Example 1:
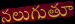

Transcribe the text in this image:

నలుగుతూ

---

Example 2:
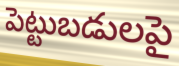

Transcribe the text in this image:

పెట్టుబడులపై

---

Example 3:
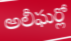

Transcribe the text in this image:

అలీఘర్లో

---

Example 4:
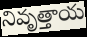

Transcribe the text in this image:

నివృత్తాయ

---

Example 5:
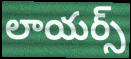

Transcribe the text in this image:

లాయర్స్